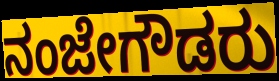
ನಂಜೇಗೌಡರು